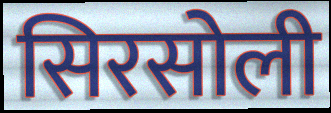
सिरसोली